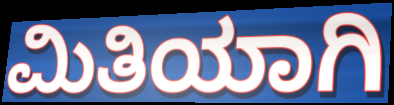
ಮಿತಿಯಾಗಿ